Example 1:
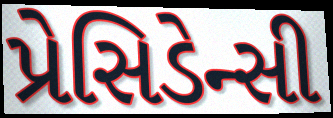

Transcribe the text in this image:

પ્રેસિડેન્સી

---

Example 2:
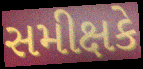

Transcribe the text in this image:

સમીક્ષકે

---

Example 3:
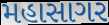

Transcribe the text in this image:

મહાસાગર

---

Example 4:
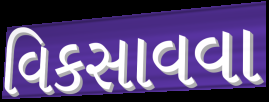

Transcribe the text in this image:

વિકસાવવા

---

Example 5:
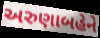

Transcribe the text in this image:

અરુણાબહેને